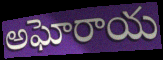
అఘోరాయ